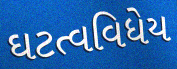
ઘટત્વવિધેય